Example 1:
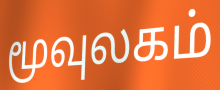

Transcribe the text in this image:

மூவுலகம்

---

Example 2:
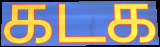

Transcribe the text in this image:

கடக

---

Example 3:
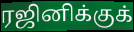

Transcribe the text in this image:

ரஜினிக்குக்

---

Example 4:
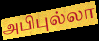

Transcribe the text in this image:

அபிபுல்லா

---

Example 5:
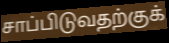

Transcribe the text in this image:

சாப்பிடுவதற்குக்